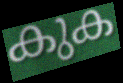
കുക